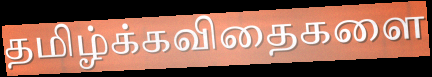
தமிழ்க்கவிதைகளை